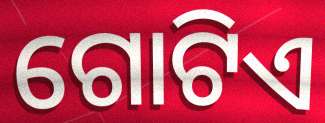
ଗୋଟିଏ